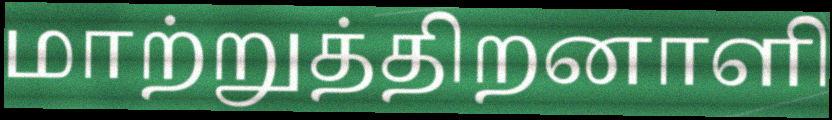
மாற்றுத்திறனாளி